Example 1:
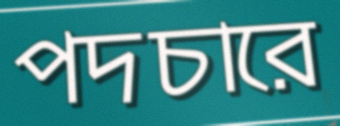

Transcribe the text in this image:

পদচারে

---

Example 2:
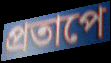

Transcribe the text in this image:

প্রতাপে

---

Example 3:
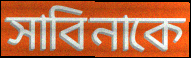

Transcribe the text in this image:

সাবিনাকে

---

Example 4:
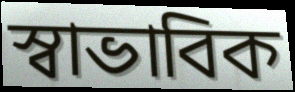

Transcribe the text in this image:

স্বাভাবিক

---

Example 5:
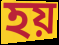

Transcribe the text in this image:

হয়